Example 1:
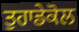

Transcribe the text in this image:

ਤੁਹਾਡੇਕੋਲ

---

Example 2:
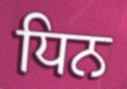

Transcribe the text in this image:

ਧਿਨ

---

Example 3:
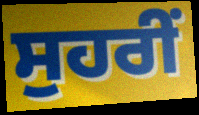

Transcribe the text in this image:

ਸੁਹਰੀਂ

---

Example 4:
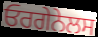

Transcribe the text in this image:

ਓਰਗੇਨੇਲਸ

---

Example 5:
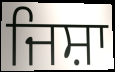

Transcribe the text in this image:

ਜਿਸ਼ਾ